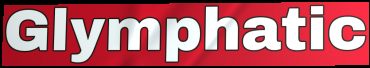
Glymphatic